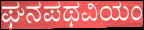
ಘನಪಥವಿಯಂ